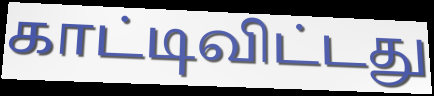
காட்டிவிட்டது